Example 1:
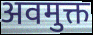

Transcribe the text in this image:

अवमुक्त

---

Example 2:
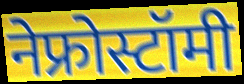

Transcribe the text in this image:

नेफ्रोस्टॉमी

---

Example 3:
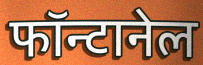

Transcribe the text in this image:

फॉन्टानेल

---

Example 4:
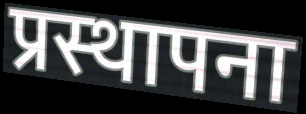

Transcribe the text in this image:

प्रस्थापना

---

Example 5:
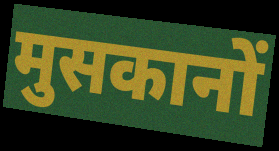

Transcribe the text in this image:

मुसकानों